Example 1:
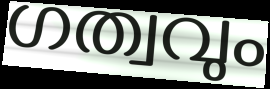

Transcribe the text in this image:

ഗത്വവും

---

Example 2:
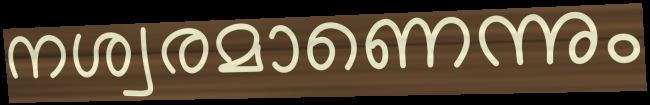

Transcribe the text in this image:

നശ്വരമാണെന്നും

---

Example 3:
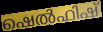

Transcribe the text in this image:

ഷെൽഫിഷ്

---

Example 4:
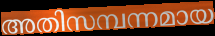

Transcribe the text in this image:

അതിസമ്പന്നമായ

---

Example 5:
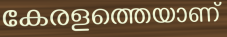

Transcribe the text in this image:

കേരളത്തെയാണ്